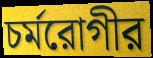
চর্মরোগীর